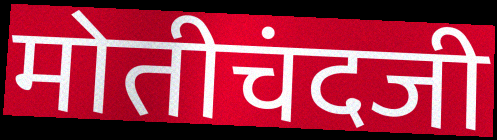
मोतीचंदजी